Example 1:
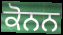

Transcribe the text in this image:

ਕੋਨਨ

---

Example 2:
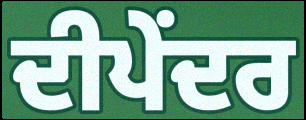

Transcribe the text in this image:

ਦੀਪੇਂਦਰ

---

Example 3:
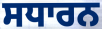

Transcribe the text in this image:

ਸਧਾਰਨ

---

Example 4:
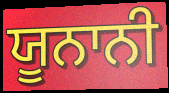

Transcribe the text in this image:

ਯੂਨਾਨੀ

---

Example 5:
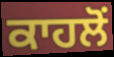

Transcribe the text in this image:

ਕਾਹਲੋਂ